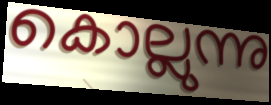
കൊല്ലുന്നു